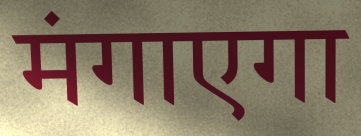
मंगाएगा